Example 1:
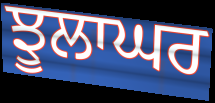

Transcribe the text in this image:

ਝੂਲਾਘਰ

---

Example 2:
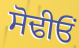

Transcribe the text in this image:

ਸੋਢੀਓਂ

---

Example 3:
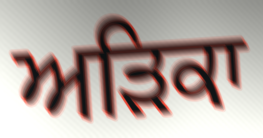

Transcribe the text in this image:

ਅੜਿਕਾ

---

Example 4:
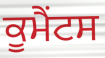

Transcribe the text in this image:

ਕੂਮੈਂਟਸ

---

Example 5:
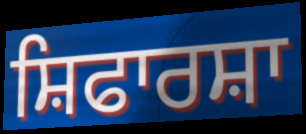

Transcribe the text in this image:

ਸ਼ਿਫਾਰਸ਼ਾ